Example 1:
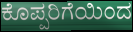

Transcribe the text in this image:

ಕೊಪ್ಪರಿಗೆಯಿಂದ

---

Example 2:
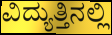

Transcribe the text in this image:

ವಿದ್ಯುತ್ತಿನಲ್ಲಿ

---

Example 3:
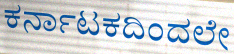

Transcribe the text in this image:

ಕರ್ನಾಟಕದಿಂದಲೇ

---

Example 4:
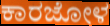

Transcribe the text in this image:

ಕಾರಜೋಳ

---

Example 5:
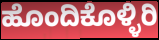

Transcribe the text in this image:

ಹೊಂದಿಕೊಳ್ಳಿರಿ